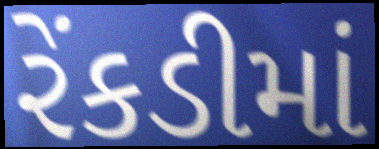
રેંકડીમાં